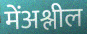
मेंअश्लील